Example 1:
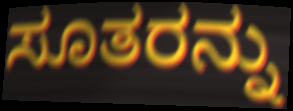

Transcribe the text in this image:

ಸೂತರನ್ನು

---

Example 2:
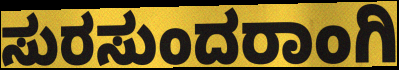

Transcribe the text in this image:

ಸುರಸುಂದರಾಂಗಿ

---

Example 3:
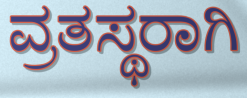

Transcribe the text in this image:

ವ್ರತಸ್ಥರಾಗಿ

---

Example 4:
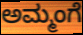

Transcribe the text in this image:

ಅಮ್ಮಂಗೆ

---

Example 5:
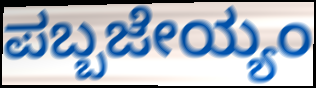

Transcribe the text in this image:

ಪಬ್ಬಜೇಯ್ಯಂ